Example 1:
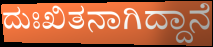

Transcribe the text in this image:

ದುಃಖಿತನಾಗಿದ್ದಾನೆ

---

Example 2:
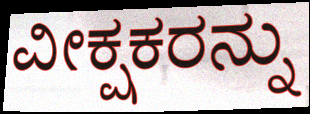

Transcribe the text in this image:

ವೀಕ್ಷಕರನ್ನು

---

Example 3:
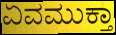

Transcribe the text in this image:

ಏವಮುಕ್ತಾ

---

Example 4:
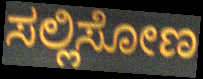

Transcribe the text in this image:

ಸಲ್ಲಿಸೋಣ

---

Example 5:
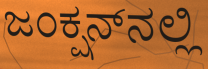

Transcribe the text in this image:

ಜಂಕ್ಷನ್‌ನಲ್ಲಿ